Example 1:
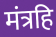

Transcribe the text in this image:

मंत्रहि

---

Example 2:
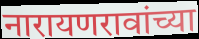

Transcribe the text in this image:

नारायणरावांच्या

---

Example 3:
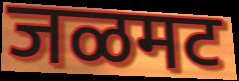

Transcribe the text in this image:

जळमट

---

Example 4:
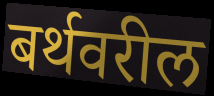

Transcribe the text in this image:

बर्थवरील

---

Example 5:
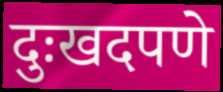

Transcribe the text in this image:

दुःखदपणे